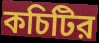
কচিটির